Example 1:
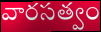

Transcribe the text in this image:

వారసత్వం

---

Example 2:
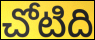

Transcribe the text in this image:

చోటిది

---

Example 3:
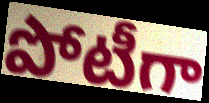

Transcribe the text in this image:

పోటీగా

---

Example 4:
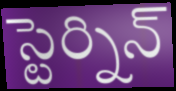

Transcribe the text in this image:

స్టెర్నిన్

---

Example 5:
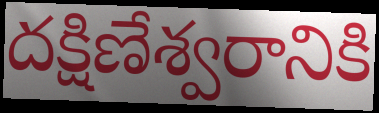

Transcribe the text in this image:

దక్షిణేశ్వరానికి